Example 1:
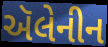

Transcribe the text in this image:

ઍલેનીન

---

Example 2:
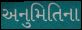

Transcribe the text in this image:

અનુમિતિના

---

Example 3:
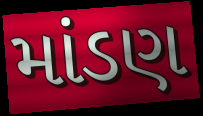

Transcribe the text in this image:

માંડણ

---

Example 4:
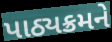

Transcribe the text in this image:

પાઠ્યક્રમને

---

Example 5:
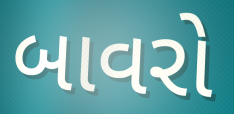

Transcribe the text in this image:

બાવરો